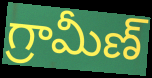
గ్రామీణ్